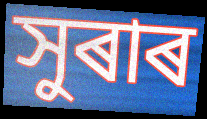
সুৰাৰ